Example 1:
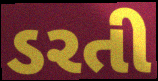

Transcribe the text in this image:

ડરતી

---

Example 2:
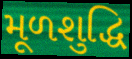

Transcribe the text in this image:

મૂળશુદ્ધિ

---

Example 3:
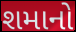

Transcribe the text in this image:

શમાનો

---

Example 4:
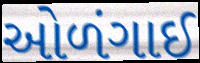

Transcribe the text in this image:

ઓળંગાઈ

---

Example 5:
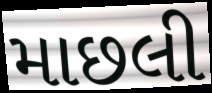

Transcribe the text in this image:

માછલી